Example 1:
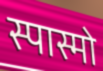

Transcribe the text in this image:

स्पास्मो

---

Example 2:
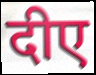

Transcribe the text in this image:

दीए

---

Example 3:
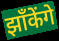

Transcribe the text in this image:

झाँकेंगे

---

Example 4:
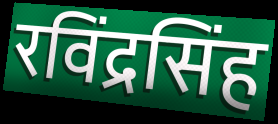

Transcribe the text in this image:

रविंद्रसिंह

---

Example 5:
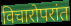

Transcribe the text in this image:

विचारोपरांत